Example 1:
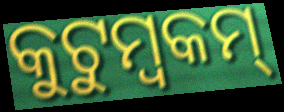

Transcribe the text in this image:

କୁଟୁମ୍ବକମ୍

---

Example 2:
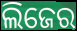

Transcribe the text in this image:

ଲିଜେର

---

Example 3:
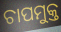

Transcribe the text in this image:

ଚାପମୁକ୍ତ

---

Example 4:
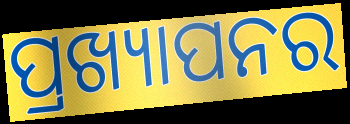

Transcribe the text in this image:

ପ୍ରଖ୍ୟାପନର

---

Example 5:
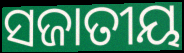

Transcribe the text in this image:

ସଜାତୀୟ